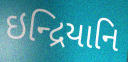
ઇન્દ્રિયાનિ